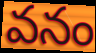
వనం